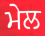
ਮੇਲ